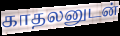
காதலனுடன்